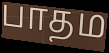
பாதம